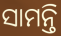
ସାମନ୍ତି